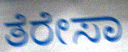
ತೆರೇಸಾ